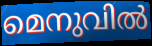
മെനുവിൽ